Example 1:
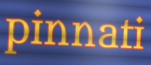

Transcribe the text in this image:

pinnati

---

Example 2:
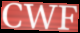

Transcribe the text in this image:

CWF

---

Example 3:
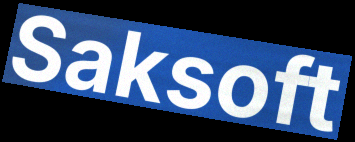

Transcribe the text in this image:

Saksoft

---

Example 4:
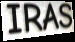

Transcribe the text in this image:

IRAS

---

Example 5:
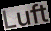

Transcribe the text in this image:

Luft